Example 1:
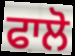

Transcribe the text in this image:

ਫਾਲੋ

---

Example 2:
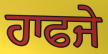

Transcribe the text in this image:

ਹਾਫਜੇ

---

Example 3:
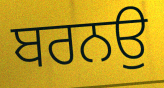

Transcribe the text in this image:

ਬਰਨਉ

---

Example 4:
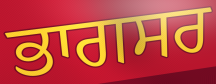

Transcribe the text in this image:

ਭਾਗਸਰ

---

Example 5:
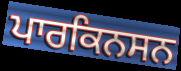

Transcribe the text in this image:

ਪਾਰਕਿਨਸਨ